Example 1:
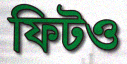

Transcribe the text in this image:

ফিটও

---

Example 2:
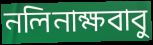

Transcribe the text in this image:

নলিনাক্ষবাবু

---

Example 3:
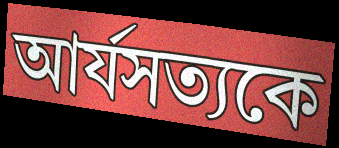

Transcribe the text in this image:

আর্যসত্যকে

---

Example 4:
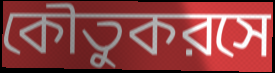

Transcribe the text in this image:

কৌতুকরসে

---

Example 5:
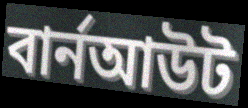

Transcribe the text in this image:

বার্নআউট